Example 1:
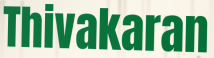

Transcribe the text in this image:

Thivakaran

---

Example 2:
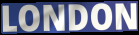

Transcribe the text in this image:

LONDON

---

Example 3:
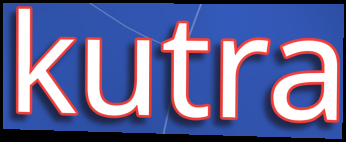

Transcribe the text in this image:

kutra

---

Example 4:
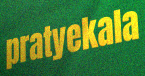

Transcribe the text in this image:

pratyekala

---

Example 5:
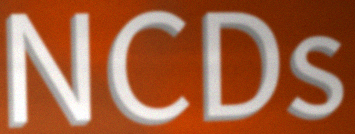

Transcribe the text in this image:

NCDs